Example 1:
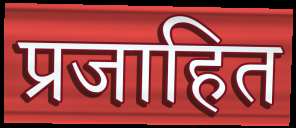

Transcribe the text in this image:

प्रजाहित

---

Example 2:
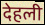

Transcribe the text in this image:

देहली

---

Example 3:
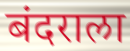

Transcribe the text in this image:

बंदराला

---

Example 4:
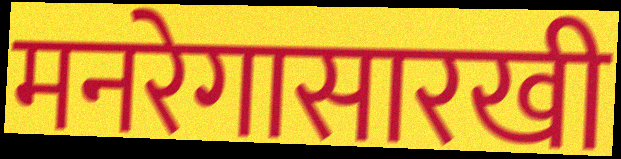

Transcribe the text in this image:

मनरेगासारखी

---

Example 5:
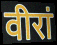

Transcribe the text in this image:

वीरां